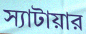
স্যাটায়ার